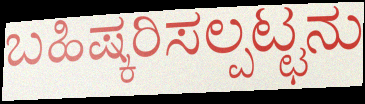
ಬಹಿಷ್ಕರಿಸಲ್ಪಟ್ಟನು